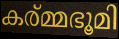
കര്മ്മഭൂമി